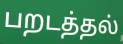
பறடத்தல்